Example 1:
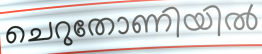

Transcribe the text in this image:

ചെറുതോണിയിൽ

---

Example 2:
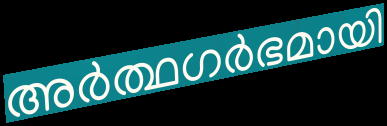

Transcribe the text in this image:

അർത്ഥഗർഭമായി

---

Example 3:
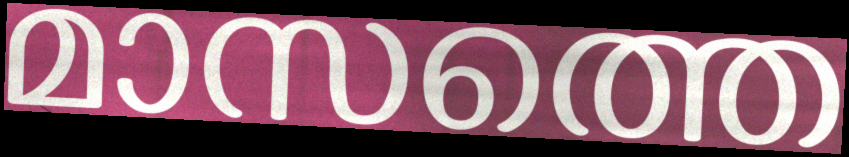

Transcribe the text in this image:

മാസത്തെ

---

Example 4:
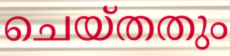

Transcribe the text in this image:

ചെയ്തതും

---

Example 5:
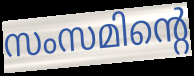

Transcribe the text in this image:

സംസമിന്റെ